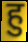
हु